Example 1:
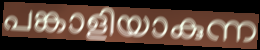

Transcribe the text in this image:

പങ്കാളിയാകുന്ന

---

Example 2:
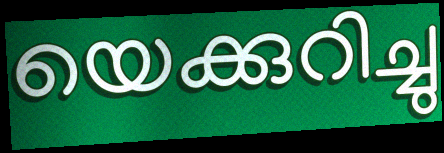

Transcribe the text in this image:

യെക്കുറിച്ചു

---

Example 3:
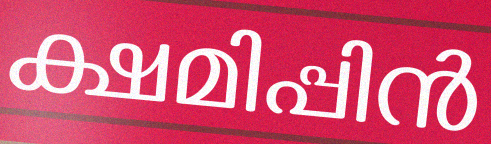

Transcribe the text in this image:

ക്ഷമിപ്പിൻ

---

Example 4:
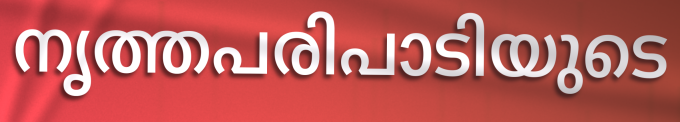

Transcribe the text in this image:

നൃത്തപരിപാടിയുടെ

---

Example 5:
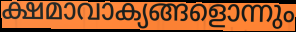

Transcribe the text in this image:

ക്ഷമാവാക്യങ്ങളൊന്നും